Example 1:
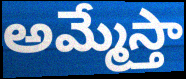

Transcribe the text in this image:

అమ్మేస్తా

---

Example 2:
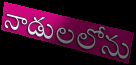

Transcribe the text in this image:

నాడులలోను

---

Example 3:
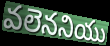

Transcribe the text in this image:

వలెననియు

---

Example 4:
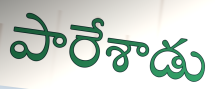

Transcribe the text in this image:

పారేశాడు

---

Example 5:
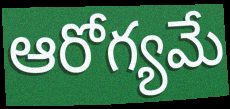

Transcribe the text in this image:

ఆరోగ్యమే